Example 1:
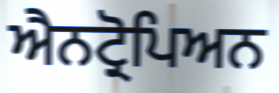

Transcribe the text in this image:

ਐਨਟ੍ਰੋਪਿਅਨ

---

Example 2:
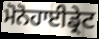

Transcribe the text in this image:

ਮੋਨੋਹਾਈਡ੍ਰੇਟ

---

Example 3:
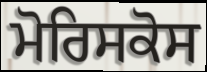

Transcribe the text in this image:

ਮੋਰਿਸਕੋਸ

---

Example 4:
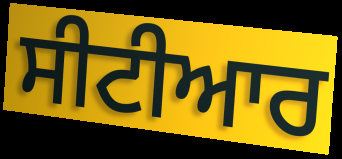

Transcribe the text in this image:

ਸੀਟੀਆਰ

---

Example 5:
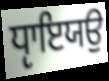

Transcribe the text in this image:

ਧੵਾਇਯਉ